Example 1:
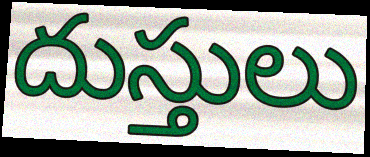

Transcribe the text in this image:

దుస్తులు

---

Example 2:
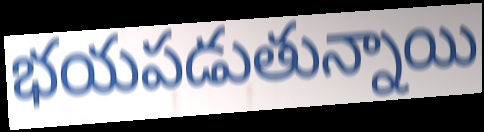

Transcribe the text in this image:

భయపడుతున్నాయి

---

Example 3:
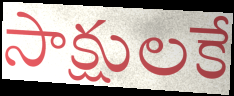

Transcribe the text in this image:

సాక్షులకే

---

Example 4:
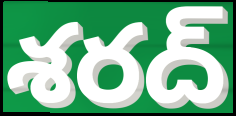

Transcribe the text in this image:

శరద్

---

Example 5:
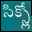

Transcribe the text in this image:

సిక్స్లో